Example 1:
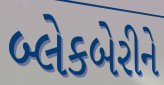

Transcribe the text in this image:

બ્લેકબેરીને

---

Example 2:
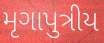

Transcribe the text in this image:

મૃગાપુત્રીય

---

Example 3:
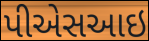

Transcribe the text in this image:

પીએસઆઇ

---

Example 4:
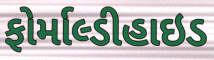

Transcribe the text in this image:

ફોર્માલ્ડીહાઇડ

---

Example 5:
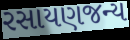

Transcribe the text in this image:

રસાયણજન્ય